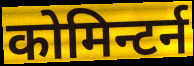
कोमिन्टर्न